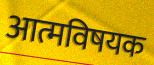
आत्मविषयक